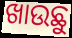
ଖାଉଛୁ